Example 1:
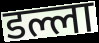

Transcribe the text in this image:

डल्ला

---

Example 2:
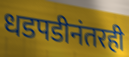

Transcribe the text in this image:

धडपडीनंतरही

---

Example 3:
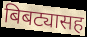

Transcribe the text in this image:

बिबट्यासह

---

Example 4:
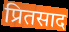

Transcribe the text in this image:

प्रितसाद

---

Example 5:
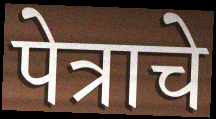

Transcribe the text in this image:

पेत्राचे